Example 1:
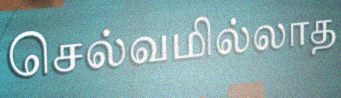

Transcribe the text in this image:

செல்வமில்லாத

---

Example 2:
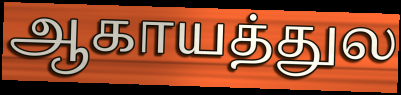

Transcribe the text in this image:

ஆகாயத்துல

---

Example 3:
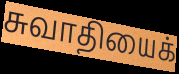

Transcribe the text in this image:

சுவாதியைக்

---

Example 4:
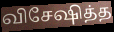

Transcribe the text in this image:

விசேஷித்த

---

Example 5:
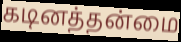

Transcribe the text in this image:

கடினத்தன்மை